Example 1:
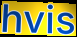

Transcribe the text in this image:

hvis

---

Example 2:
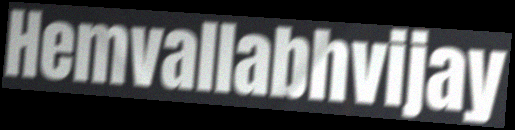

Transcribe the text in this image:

Hemvallabhvijay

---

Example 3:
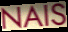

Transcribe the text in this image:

NAIS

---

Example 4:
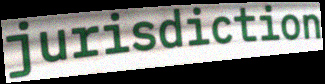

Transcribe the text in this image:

jurisdiction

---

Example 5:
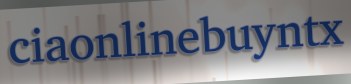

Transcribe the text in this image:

ciaonlinebuyntx